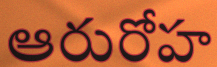
ఆరురోహ